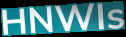
HNWIs